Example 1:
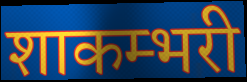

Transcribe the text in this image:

शाकम्भरी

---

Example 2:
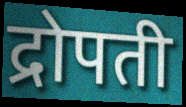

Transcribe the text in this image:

द्रोपती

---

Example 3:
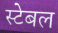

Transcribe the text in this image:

स्टेबल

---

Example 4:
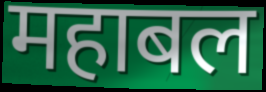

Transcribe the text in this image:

महाबल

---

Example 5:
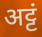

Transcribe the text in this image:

अट्टं